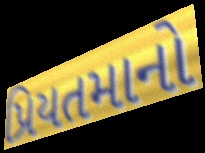
પ્રિયતમાનો